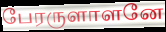
பேரருளாளனே